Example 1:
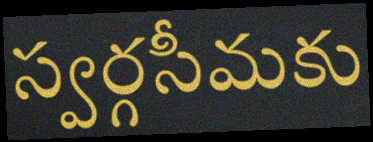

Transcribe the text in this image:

స్వర్గసీమకు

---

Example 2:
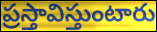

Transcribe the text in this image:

ప్రస్తావిస్తుంటారు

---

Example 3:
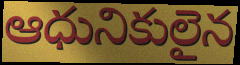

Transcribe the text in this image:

ఆధునికులైన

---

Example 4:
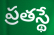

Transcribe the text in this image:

ప్రతస్థే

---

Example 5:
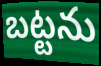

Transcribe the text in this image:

బట్టను